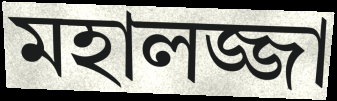
মহালজ্জা